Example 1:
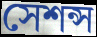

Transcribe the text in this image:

সেশন্স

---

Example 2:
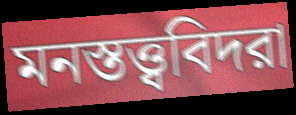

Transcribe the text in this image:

মনস্তত্ত্ববিদরা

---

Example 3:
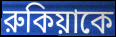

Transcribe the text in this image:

রুকিয়াকে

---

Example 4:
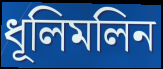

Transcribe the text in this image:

ধূলিমলিন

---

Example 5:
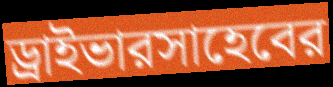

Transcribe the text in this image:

ড্রাইভারসাহেবের